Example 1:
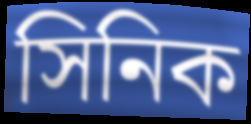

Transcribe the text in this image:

সিনিক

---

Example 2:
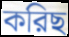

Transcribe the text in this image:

করিছ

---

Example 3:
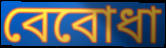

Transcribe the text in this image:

বেবোধা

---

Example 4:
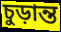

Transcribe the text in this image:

চুড়ান্ত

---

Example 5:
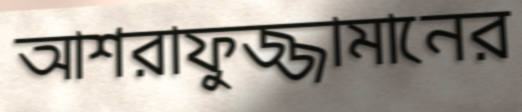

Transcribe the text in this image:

আশরাফুজ্জামানের